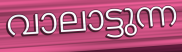
വാലാട്ടുന്ന